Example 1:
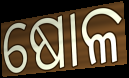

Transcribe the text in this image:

ଷୋଳ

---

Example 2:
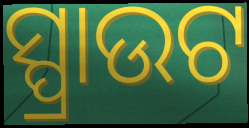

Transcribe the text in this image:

ସ୍ପ୍ରାଉଟ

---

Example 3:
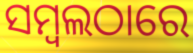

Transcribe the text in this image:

ସମ୍ବଲଠାରେ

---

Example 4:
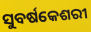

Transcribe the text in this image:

ସୁବର୍ଷକେଶରୀ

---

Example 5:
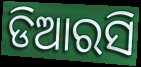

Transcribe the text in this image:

ଡିଆରସି